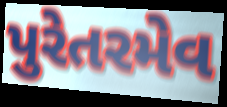
પુરેતરમેવ